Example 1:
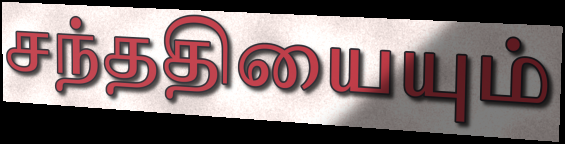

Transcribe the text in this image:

சந்ததியையும்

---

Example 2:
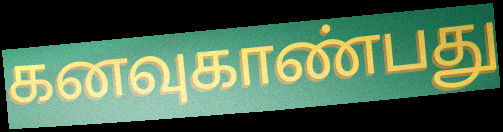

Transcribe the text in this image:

கனவுகாண்பது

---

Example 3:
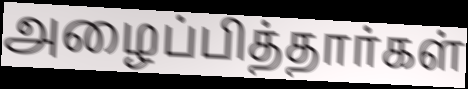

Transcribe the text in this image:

அழைப்பித்தார்கள்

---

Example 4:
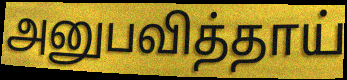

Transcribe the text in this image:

அனுபவித்தாய்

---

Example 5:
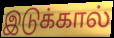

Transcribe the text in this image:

இடுக்கால்